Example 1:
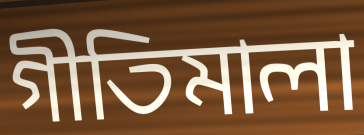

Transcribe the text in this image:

গীতিমালা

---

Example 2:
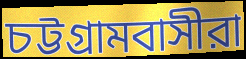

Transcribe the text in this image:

চট্টগ্রামবাসীরা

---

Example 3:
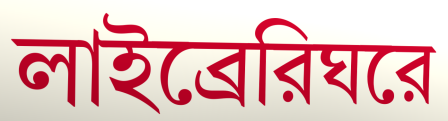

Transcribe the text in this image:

লাইব্রেরিঘরে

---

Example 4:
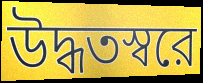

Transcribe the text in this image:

উদ্ধতস্বরে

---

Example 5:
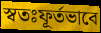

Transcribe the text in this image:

স্বতঃফূর্তভাবে